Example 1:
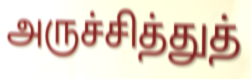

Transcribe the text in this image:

அருச்சித்துத்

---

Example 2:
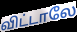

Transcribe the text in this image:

விட்டாலே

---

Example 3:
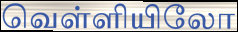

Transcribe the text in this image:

வெள்ளியிலோ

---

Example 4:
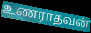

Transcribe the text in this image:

உணராதவன்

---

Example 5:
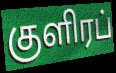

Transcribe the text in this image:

குளிரப்